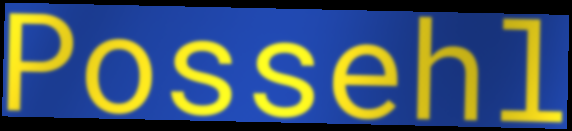
Possehl